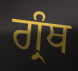
ਗ੍ਰੰਥ